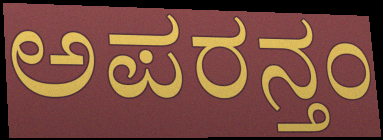
ಅಪರನ್ತಂ